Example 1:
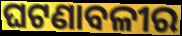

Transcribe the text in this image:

ଘଟଣାବଳୀର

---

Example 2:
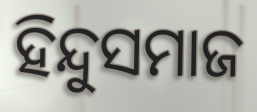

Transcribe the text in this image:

ହିନ୍ଦୁସମାଜ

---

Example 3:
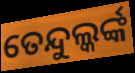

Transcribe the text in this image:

ତେନ୍ଦୁଲ୍କର୍ଙ୍କ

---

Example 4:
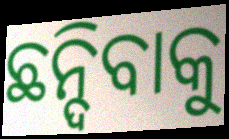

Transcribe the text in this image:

ଛନ୍ଦିବାକୁ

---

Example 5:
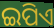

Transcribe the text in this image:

ଇପିଏ